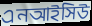
এনআইসিউ